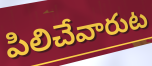
పిలిచేవారుట